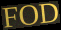
FOD